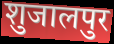
शुजालपुर